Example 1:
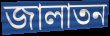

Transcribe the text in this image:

জালাতন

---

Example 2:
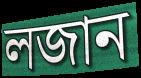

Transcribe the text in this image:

লজান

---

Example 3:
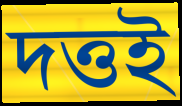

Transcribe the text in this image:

দত্তই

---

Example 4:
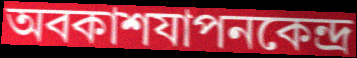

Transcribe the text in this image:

অবকাশযাপনকেন্দ্র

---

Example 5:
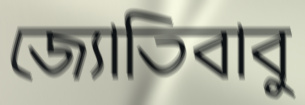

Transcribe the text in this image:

জ্যোতিবাবু